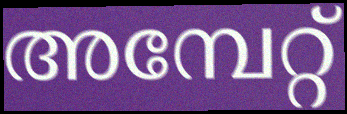
അമ്പേറ്റ്